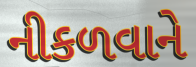
નીકળવાને